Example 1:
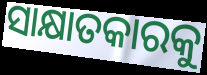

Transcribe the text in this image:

ସାକ୍ଷାତକାରକୁ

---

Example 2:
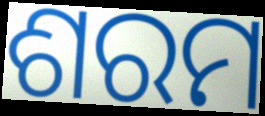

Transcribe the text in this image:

ଶରମ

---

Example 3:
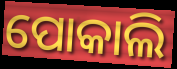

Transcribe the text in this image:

ପୋକାଲି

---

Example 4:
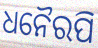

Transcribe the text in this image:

ଧନୈରପି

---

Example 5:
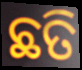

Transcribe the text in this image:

ଛତି